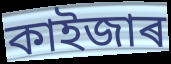
কাইজাৰ